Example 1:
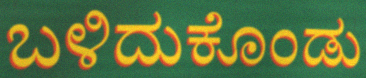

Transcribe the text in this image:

ಬಳಿದುಕೊಂಡು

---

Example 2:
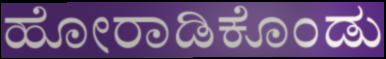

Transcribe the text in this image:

ಹೋರಾಡಿಕೊಂಡು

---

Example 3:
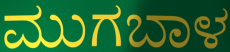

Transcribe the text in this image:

ಮುಗಬಾಳ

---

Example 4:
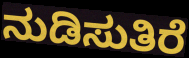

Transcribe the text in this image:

ನುಡಿಸುತಿರೆ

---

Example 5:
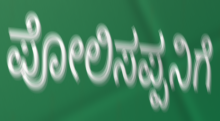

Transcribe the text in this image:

ಪೋಲಿಸಪ್ಪನಿಗೆ